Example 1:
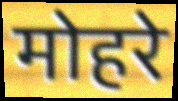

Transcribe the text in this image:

मोहरे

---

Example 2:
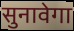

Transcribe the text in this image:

सुनावेगा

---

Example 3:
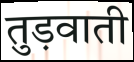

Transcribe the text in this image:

तुड़वाती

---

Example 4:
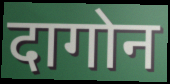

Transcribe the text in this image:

दागोन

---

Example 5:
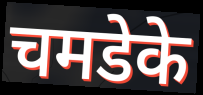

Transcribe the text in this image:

चमडेके